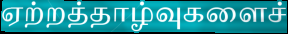
ஏற்றத்தாழ்வுகளைச்